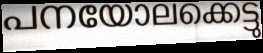
പനയോലക്കെട്ടു